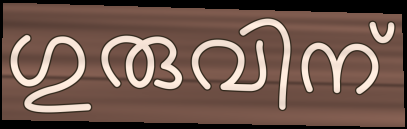
ഗുരുവിന്